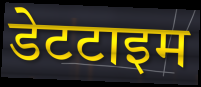
डेटटाइम